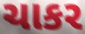
ચાકર